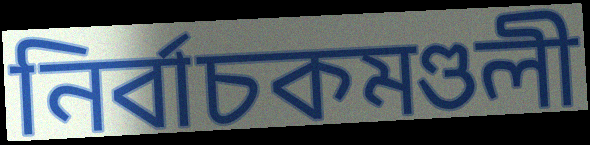
নির্বাচকমণ্ডলী